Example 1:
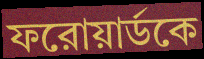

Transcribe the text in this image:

ফরোয়ার্ডকে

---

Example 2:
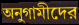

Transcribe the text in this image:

অনুগামীদের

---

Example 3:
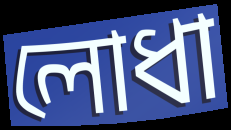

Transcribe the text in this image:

লোধা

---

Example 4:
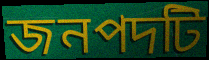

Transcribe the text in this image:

জনপদটি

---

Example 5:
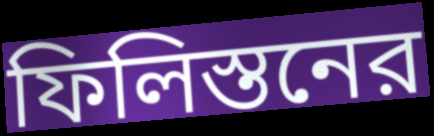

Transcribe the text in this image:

ফিলিস্তনের